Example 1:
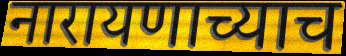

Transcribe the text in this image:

नारायणाच्याच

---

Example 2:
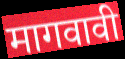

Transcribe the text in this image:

मागवावी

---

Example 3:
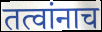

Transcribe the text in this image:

तत्वांनाच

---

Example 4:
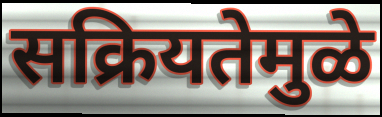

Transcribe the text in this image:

सक्रियतेमुळे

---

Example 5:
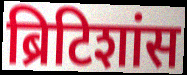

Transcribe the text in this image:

ब्रिटिशांस